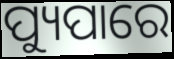
ପ୍ୟୁପାରେ